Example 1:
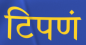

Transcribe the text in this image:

टिपणं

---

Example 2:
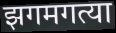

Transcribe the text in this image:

झगमगत्या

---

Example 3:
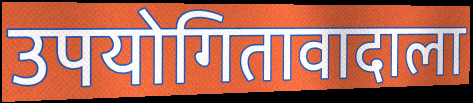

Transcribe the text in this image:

उपयोगितावादाला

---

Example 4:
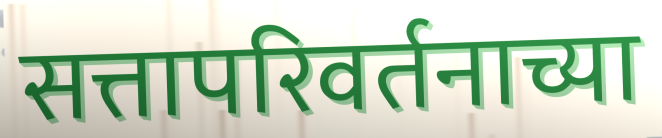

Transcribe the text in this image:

सत्तापरिवर्तनाच्या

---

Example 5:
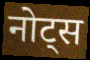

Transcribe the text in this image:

नोट्स